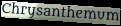
Chrysanthemum